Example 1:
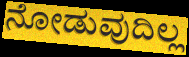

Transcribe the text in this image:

ನೋಡುವುದಿಲ್ಲ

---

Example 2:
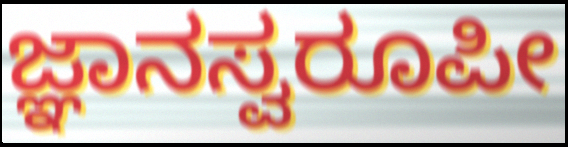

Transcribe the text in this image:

ಜ್ಞಾನಸ್ವರೂಪೀ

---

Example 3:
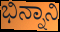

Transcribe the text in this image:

ಭಿನ್ನಾನಿ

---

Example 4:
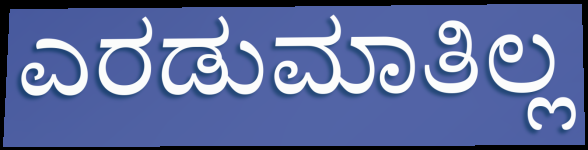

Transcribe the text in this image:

ಎರಡುಮಾತಿಲ್ಲ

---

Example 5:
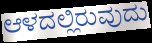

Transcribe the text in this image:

ಆಳದಲ್ಲಿರುವುದು